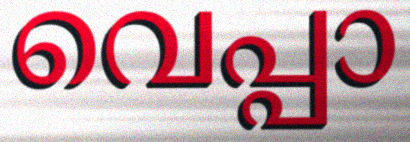
വെപ്പാ